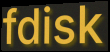
fdisk